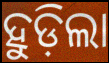
ହୁଡ଼ିଲା